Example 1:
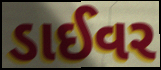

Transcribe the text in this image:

ડાઈવર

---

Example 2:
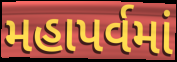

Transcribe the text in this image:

મહાપર્વમાં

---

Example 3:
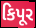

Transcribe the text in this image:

કિપૂર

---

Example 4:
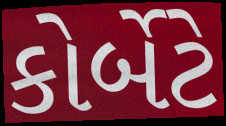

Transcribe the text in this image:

કોર્બેટે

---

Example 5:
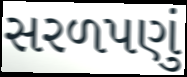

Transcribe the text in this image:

સરળપણું